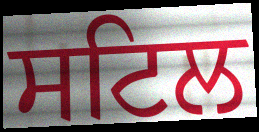
ਸਟਿਲ